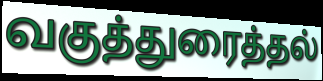
வகுத்துரைத்தல்